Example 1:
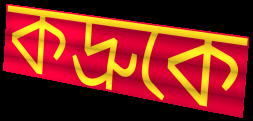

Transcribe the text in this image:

কদ্রুকে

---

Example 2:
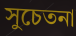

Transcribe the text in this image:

সুচেতনা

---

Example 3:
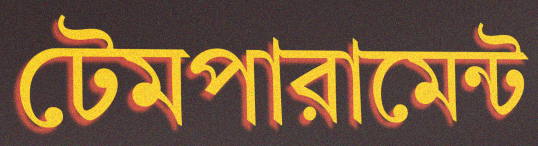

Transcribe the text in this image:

টেমপারামেন্ট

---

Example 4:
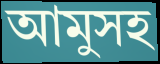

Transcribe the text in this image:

আমুসহ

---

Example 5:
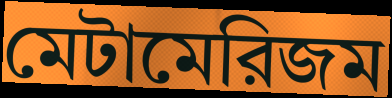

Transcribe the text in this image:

মেটামেরিজম